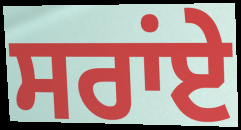
ਸਰਾਂਏ